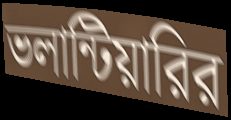
ভলান্টিয়ারির